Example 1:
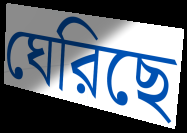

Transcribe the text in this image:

ঘেরিছে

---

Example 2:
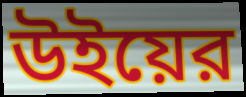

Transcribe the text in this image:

উইয়ের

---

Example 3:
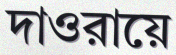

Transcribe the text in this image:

দাওরায়ে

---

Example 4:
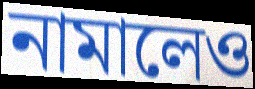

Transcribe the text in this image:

নামালেও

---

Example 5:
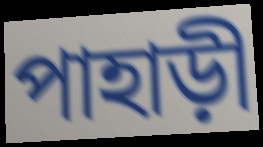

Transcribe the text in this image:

পাহাড়ী